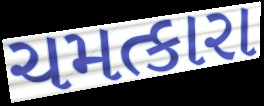
ચમત્કારા